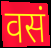
वसं